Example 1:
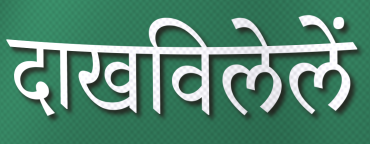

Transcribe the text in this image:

दाखविलेलें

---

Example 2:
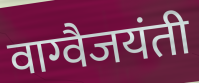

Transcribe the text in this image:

वाग्वैजयंती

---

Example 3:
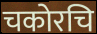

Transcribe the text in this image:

चकोरचि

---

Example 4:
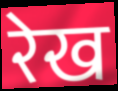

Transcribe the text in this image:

रेख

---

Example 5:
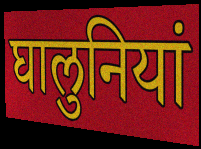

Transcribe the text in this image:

घालुनियां